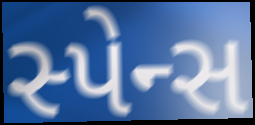
સ્પેન્સ